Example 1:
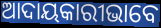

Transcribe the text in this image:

ଆଦାୟକାରୀଭାବେ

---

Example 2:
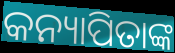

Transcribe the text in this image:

କନ୍ୟାପିତାଙ୍କ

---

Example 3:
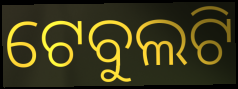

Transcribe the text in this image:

ଟେବୁଲଟି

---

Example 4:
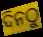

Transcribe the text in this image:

ଦିନଠୁ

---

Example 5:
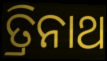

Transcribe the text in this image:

ତ୍ରିନାଥ